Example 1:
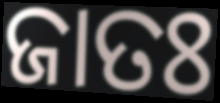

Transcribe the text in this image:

ଜାତଃ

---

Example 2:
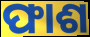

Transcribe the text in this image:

ଫାଶ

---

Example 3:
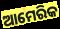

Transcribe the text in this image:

ଆମେରିକ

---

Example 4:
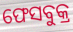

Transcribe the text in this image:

ଫେସବୁକ୍ର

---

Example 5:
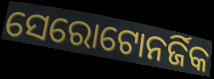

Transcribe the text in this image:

ସେରୋଟୋନର୍ଜିକ